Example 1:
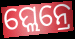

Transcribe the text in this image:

ପ୍ଲେନ୍ରେ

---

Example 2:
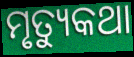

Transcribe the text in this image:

ମୃତ୍ୟୁକଥା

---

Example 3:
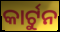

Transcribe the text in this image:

କାର୍ଟୁନ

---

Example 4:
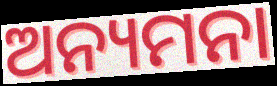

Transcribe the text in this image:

ଅନ୍ୟମନା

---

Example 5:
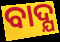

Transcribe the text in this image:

ବାଦ୍ଯ